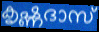
കൃഷ്ണദാസ്